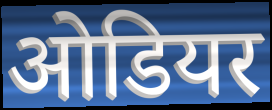
ओडियर